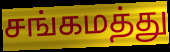
சங்கமத்து